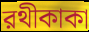
রথীকাকা